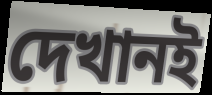
দেখানই